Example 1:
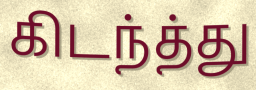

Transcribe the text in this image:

கிடந்த்து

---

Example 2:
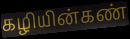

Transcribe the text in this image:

கழியின்கண்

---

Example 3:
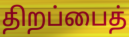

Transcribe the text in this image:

திறப்பைத்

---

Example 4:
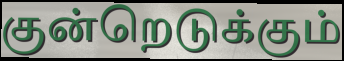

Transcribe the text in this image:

குன்றெடுக்கும்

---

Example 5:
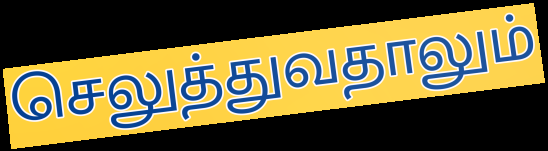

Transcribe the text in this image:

செலுத்துவதாலும்